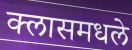
क्लासमधले